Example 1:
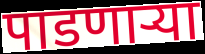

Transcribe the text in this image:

पाडणाऱ्या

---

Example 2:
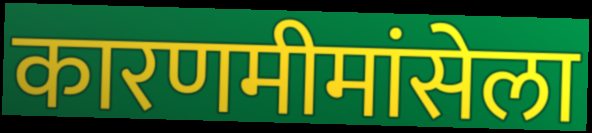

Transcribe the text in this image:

कारणमीमांसेला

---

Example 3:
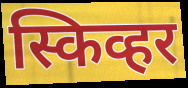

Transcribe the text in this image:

स्किव्हर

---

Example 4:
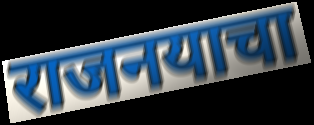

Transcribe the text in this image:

राजनयाचा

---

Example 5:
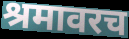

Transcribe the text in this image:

श्रमावरच